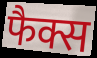
फैक्स